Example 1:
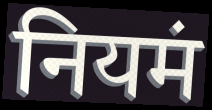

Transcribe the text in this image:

नियमं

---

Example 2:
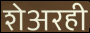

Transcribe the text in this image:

शेअरही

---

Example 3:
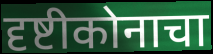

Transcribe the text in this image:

दृष्टीकोनाचा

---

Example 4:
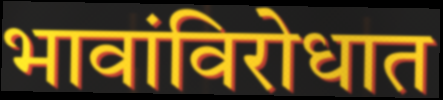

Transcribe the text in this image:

भावांविरोधात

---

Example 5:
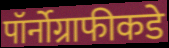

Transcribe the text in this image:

पॉर्नोग्राफीकडे